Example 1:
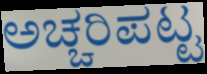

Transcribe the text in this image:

ಅಚ್ಚರಿಪಟ್ಟ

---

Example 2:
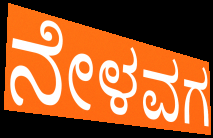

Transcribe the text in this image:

ನೇಳವಗ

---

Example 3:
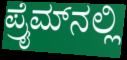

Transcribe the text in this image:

ಪ್ರೈಮ್‌ನಲ್ಲಿ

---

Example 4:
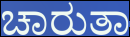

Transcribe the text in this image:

ಚಾರುತಾ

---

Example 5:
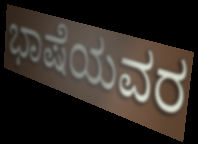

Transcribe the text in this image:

ಭಾಷೆಯವರ